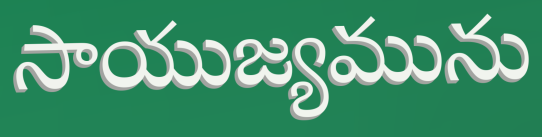
సాయుజ్యమును